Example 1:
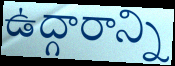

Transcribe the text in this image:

ఉద్గారాన్ని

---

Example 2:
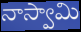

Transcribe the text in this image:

నాస్వామి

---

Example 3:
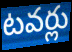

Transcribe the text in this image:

టవర్లు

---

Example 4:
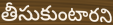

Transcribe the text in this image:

తీసుకుంటారని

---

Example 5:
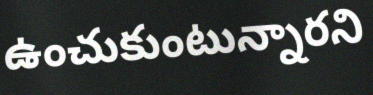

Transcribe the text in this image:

ఉంచుకుంటున్నారని